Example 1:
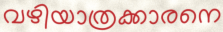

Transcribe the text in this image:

വഴിയാത്രക്കാരനെ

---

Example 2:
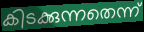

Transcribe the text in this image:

കിടക്കുന്നതെന്ന്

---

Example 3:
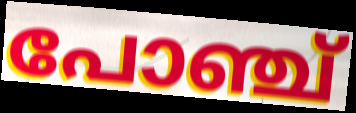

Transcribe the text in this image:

പോഞ്ച്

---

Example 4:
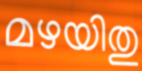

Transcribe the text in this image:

മഴയിതു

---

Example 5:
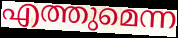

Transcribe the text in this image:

എത്തുമെന്ന